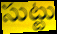
సుట్టు